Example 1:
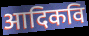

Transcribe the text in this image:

आदिकवि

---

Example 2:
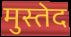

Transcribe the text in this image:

मुस्तेद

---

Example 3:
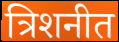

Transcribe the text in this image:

त्रिशनीत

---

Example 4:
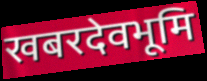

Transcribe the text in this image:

खबरदेवभूमि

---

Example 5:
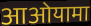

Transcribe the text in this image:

आओयामा